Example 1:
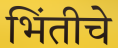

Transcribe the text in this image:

भिंतीचे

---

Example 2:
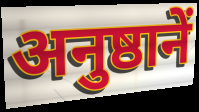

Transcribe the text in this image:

अनुष्ठानें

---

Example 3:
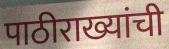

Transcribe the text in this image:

पाठीराख्यांची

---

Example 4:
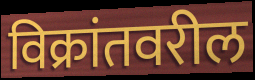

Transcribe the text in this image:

विक्रांतवरील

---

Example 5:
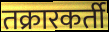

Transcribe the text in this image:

तक्रारकर्ती